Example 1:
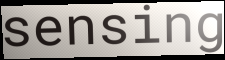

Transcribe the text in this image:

sensing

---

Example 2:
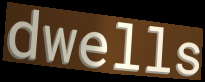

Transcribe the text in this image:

dwells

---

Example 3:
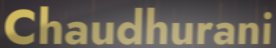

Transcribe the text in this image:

Chaudhurani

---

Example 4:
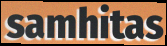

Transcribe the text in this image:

samhitas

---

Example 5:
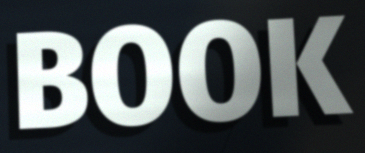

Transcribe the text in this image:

BOOK